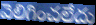
వెలిగించలేదు